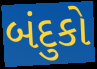
બંદુકો